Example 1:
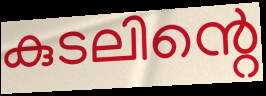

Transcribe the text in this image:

കുടലിന്റെ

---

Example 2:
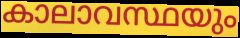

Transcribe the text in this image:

കാലാവസ്ഥയും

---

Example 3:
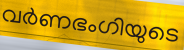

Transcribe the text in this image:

വർണഭംഗിയുടെ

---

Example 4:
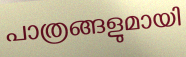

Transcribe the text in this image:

പാത്രങ്ങളുമായി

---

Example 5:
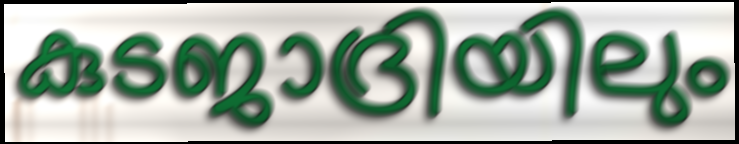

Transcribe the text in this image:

കുടജാദ്രിയിലും